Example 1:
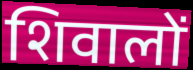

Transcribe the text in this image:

शिवालों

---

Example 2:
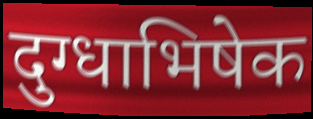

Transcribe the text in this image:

दुग्धाभिषेक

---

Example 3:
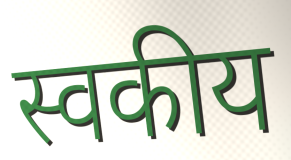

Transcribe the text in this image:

स्वकीय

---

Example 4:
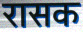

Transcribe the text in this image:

रासक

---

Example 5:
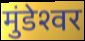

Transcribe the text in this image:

मुंडेश्वर